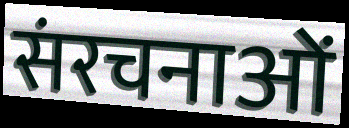
संरचनाओं